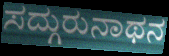
ಸದ್ಗುರುನಾಥನ